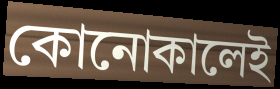
কোনোকালেই